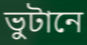
ভুটানে